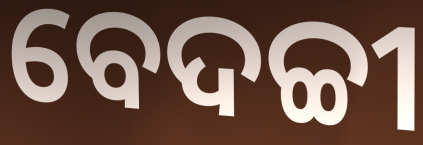
ବେଦଚ୍ଚୀ